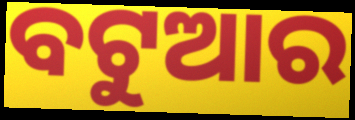
ବଟୁଆର